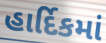
હાર્દિકમાં